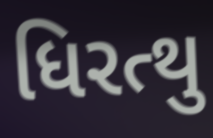
ધિરત્થુ